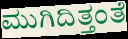
ಮುಗಿದಿತ್ತಂತೆ